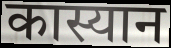
कास्यान